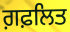
ਗ਼ਫ਼ਲਿਤ